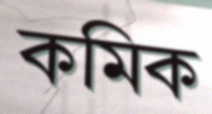
কমিক